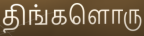
திங்களொரு